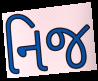
નિજ